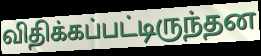
விதிக்கப்பட்டிருந்தன